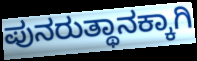
ಪುನರುತ್ಥಾನಕ್ಕಾಗಿ